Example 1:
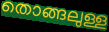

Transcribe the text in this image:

തൊങ്ങലുള്ള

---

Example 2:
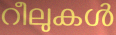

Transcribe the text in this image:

റീലുകൾ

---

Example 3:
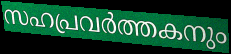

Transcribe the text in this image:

സഹപ്രവർത്തകനും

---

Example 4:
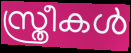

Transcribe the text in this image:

സ്ത്രീകൾ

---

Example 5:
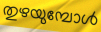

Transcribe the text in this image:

തുഴയുമ്പോൾ